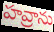
హవ్రాను